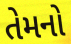
તેમનો